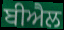
ਬੀਐਲ